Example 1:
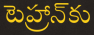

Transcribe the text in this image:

టెహ్రాన్‌కు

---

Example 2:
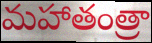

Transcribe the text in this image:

మహాతంత్రా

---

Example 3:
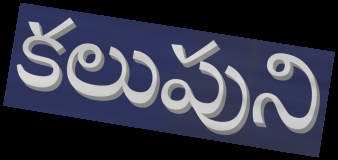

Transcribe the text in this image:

కలుపుని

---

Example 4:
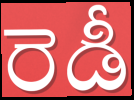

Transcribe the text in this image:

రెడీ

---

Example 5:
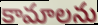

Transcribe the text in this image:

కామాలను